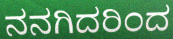
ನನಗಿದರಿಂದ